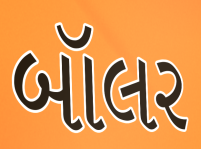
બૉલર